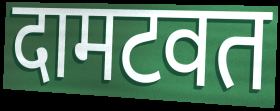
दामटवत